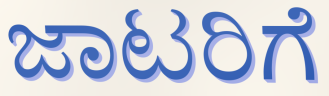
ಜಾಟರಿಗೆ